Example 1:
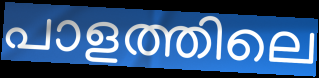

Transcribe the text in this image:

പാളത്തിലെ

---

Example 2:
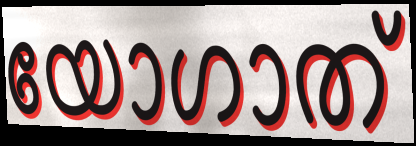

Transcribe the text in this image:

യോഗാത്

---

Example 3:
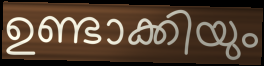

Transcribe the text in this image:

ഉണ്ടാക്കിയും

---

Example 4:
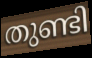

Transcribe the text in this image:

തുണ്ടി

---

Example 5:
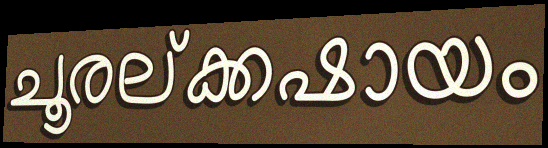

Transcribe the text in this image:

ചൂരല്ക്കഷായം